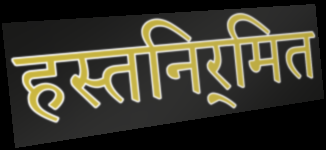
हस्तनिर्मित